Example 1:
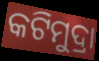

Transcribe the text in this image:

କଟିମୁଦ୍ରା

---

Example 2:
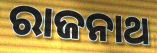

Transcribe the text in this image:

ରାଜନାଥ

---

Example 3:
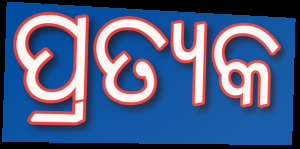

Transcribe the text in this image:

ପ୍ରତ୍ୟକ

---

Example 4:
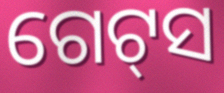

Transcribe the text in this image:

ଗେଟ୍‌ସ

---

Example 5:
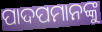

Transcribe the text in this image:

ପାଦପମାନଙ୍କୁ